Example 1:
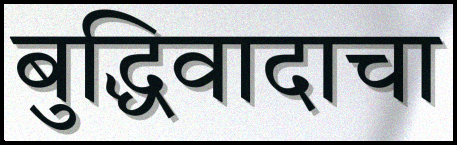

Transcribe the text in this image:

बुद्धिवादाचा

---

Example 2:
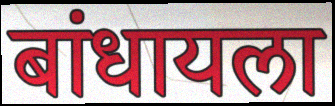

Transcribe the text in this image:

बांधायला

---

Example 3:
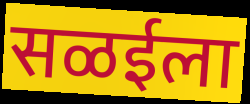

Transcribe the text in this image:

सळईला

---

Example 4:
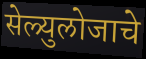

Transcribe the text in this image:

सेल्युलोजाचे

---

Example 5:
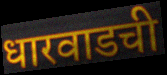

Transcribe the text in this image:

धारवाडची